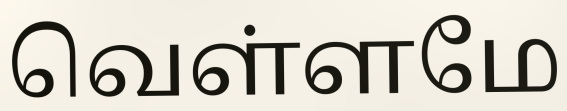
வெள்ளமே